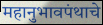
महानुभावपंथाचे